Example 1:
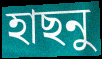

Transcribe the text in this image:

হাছনু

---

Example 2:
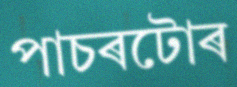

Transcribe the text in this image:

পাচৰটোৰ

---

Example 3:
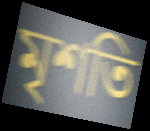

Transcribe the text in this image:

মৃশতি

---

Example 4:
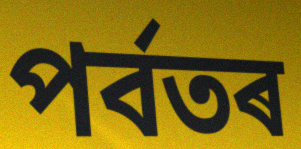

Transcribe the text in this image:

পৰ্বতৰ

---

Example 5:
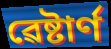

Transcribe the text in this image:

ৱেষ্টাৰ্ণ